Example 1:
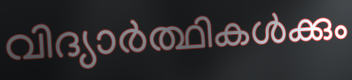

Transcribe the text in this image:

വിദ്യാർത്ഥികൾക്കും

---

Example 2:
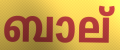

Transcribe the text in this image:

ബാല്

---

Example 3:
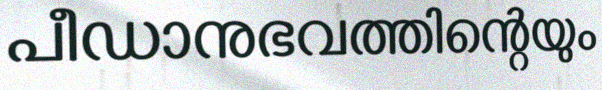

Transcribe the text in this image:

പീഡാനുഭവത്തിന്റെയും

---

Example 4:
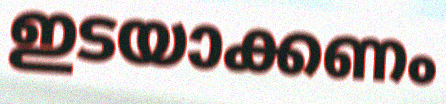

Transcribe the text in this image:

ഇടയാക്കണം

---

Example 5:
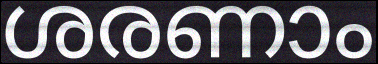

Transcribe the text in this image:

ശരണാം